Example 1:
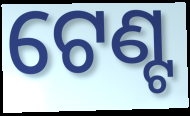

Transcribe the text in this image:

ଟେଣ୍ଟ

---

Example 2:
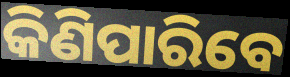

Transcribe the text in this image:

କିଣିପାରିବେ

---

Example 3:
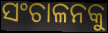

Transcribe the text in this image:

ସଂଚାଳନକୁ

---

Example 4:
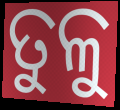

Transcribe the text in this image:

ତୁଳୁ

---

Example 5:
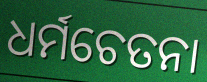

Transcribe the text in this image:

ଧର୍ମଚେତନା